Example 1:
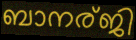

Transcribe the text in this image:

ബാനര്ജി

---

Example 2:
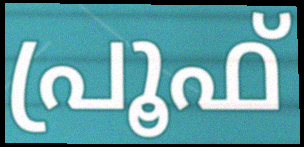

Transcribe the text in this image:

പ്രൂഫ്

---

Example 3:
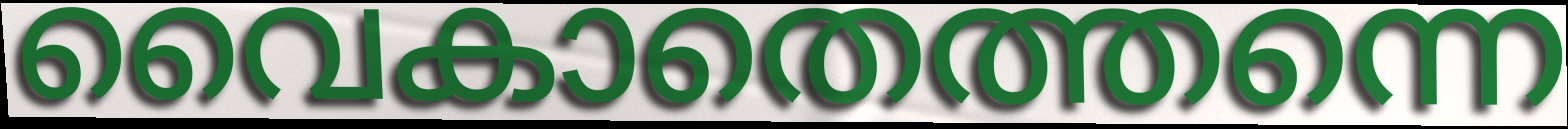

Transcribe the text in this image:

വൈകാതെത്തന്നെ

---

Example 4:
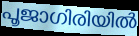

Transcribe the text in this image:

പൂജാഗിരിയിൽ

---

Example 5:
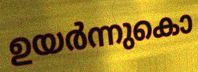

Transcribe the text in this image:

ഉയർന്നുകൊ